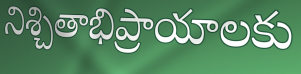
నిశ్చితాభిప్రాయాలకు